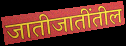
जातीजातींतील